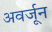
अवर्जून